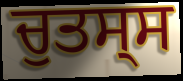
ਚੁਤਸ੍ਸ